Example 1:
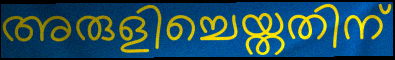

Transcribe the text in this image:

അരുളിച്ചെയ്തതിന്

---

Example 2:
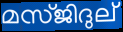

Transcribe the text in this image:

മസ്ജിദുല്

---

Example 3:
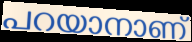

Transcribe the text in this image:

പറയാനാണ്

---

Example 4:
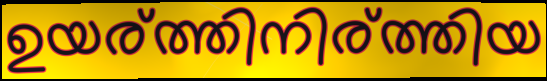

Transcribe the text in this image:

ഉയര്ത്തിനിര്ത്തിയ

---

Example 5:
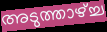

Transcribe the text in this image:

അടുത്താഴ്ച്ച